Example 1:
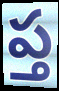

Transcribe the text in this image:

ప్త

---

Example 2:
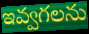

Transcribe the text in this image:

ఇవ్వగలను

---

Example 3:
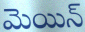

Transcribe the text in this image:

మెయిన్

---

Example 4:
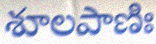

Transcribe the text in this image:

శూలపాణిః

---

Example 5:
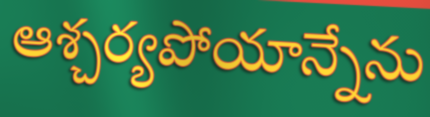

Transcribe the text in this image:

ఆశ్చర్యపోయాన్నేను